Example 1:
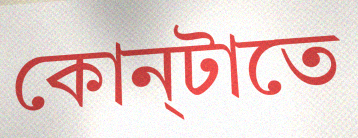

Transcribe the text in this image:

কোন্‌টাতে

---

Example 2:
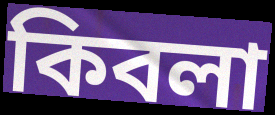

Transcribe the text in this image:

কিবলা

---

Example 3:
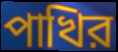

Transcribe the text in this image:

পাখির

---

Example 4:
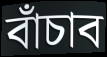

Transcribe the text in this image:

বাঁচাব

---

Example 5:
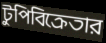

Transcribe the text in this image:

টুপিবিক্রেতার